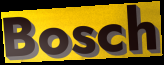
Bosch